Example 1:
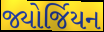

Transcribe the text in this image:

જ્યોર્જિયન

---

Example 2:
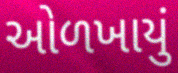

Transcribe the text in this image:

ઓળખાયું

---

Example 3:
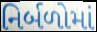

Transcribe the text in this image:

નિર્બળોમાં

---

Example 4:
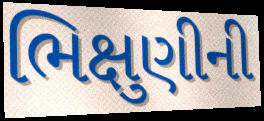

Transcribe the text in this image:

ભિક્ષુણીની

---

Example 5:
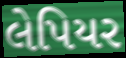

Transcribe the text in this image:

લેપિયર